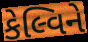
કેલ્વિને